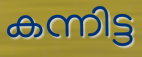
കന്നിട്ട